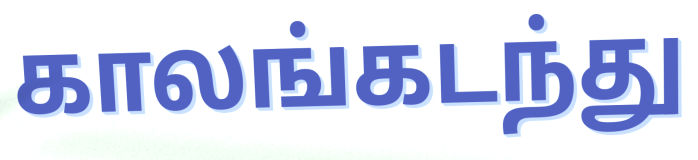
காலங்கடந்து